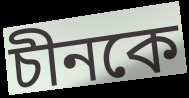
চীনকে